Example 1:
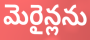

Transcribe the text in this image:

మెరైన్లను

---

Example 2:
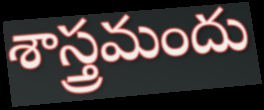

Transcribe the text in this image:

శాస్త్రమందు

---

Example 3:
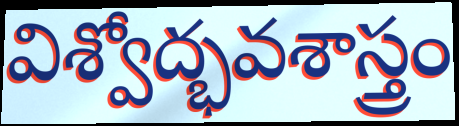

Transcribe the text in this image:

విశ్వోద్భవశాస్త్రం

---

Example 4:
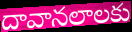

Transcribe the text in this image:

దావానలాలకు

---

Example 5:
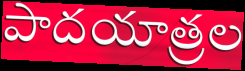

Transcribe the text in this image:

పాదయాత్రల